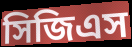
সিজিএস